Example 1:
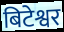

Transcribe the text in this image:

बिटेश्वर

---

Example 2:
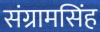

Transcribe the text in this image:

संग्रामसिंह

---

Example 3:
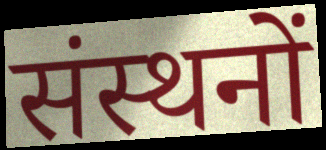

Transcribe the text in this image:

संस्थनों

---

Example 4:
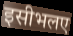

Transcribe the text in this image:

इसीभलए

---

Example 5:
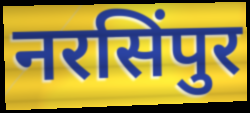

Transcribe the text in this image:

नरसिंपुर